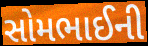
સોમભાઈની